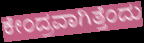
ಕೇಂದ್ರವಾಗಿತ್ತೆಂದು